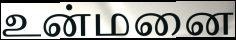
உன்மனை